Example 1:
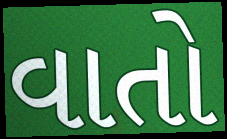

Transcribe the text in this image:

વાતો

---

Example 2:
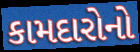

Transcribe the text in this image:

કામદારોનો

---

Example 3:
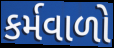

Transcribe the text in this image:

કર્મવાળો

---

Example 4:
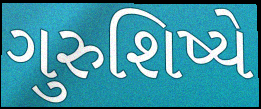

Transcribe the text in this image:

ગુરુશિષ્યે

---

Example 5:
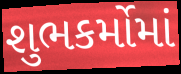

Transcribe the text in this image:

શુભકર્મોમાં